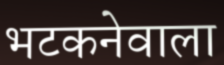
भटकनेवाला